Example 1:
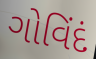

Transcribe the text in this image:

ગોવિંદં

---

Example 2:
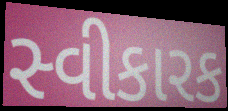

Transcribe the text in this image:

સ્વીકારક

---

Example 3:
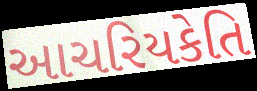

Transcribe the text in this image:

આચરિયકેતિ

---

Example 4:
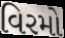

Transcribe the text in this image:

વિરમો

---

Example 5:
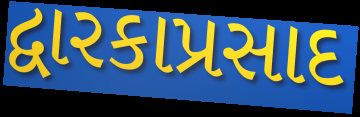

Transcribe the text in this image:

દ્વારકાપ્રસાદ